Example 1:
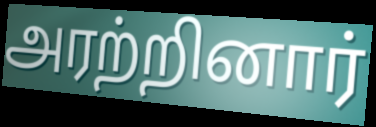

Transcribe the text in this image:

அரற்றினார்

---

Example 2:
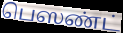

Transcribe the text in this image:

பெஸண்ட்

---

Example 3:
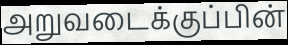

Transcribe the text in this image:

அறுவடைக்குப்பின்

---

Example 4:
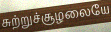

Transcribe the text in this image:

சுற்றுச்சூழலையே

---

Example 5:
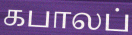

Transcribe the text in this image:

கபாலப்